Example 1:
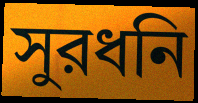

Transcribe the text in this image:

সুরধনি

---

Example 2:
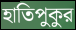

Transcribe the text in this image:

হাতিপুকুর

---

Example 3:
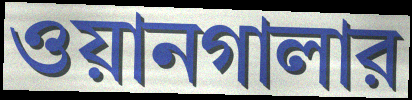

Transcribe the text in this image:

ওয়ানগালার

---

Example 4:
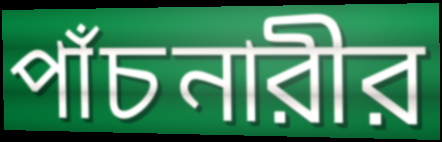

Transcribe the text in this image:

পাঁচনারীর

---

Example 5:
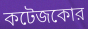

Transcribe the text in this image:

কটেজকোর